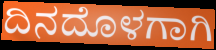
ದಿನದೊಳಗಾಗಿ